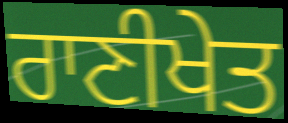
ਰਾਣੀਖੇਤ